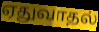
ஏதுவாதல்